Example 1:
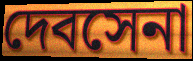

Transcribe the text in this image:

দেবসেনা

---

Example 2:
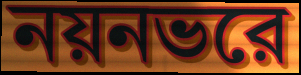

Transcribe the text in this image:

নয়নভরে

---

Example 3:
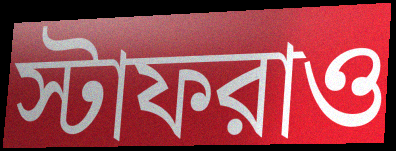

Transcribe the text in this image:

স্টাফরাও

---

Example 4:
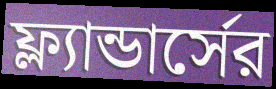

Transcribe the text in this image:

ফ্ল্যান্ডার্সের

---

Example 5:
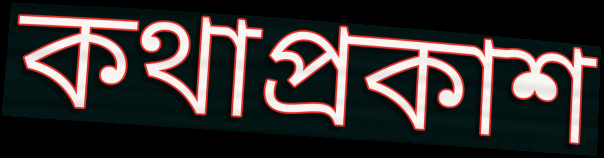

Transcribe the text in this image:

কথাপ্রকাশ